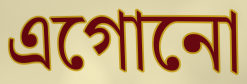
এগোনো